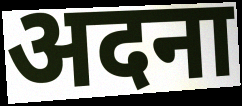
अदना